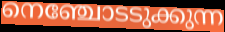
നെഞ്ചോടടുക്കുന്ന